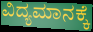
ವಿದ್ಯಮಾನಕ್ಕೆ